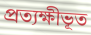
প্রত্যক্ষীভূত